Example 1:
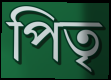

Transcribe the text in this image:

পিতৃ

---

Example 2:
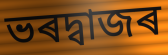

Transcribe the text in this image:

ভৰদ্বাজৰ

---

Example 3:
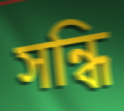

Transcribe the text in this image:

সন্ধি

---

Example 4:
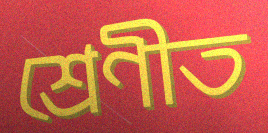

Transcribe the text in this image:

শ্ৰেণীত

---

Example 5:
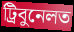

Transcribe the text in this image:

ট্ৰিবুনেলত